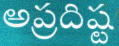
అప్రదిష్ట